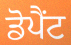
ਡੋਪੈਂਟ